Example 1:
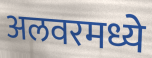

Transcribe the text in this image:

अलवरमध्ये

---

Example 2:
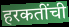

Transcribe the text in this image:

हरकतींची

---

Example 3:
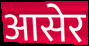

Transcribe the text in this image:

आसेर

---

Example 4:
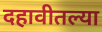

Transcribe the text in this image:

दहावीतल्या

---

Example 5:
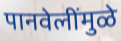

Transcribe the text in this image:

पानवेलींमुळे